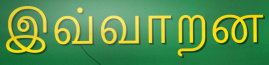
இவ்வாறன